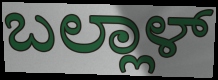
ಬಲ್ಲಾಳ್